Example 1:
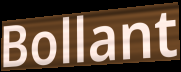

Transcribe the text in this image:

Bollant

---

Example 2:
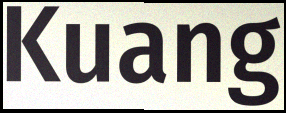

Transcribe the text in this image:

Kuang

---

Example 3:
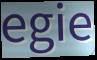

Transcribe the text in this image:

egie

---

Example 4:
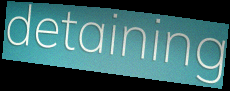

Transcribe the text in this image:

detaining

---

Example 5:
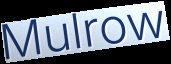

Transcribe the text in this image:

Mulrow